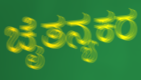
ಚೈತನ್ಯಕರ